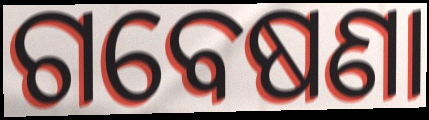
ଗବେଷଣା